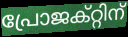
പ്രോജക്റ്റിന്